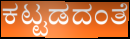
ಕಟ್ಟಡದಂತೆ